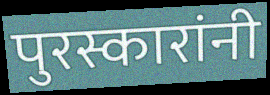
पुरस्कारांनी